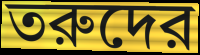
তরুদের